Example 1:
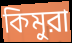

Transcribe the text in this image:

কিমুরা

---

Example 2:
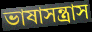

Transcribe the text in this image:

ভাষাসন্ত্রাস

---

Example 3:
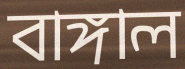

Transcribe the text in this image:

বাঙ্গাল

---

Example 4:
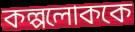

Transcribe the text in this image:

কল্পলোককে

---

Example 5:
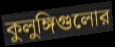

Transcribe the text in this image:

কুলুঙ্গিগুলোর